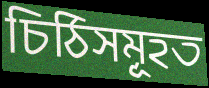
চিঠিসমূহত